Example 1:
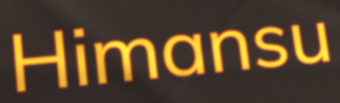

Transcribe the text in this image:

Himansu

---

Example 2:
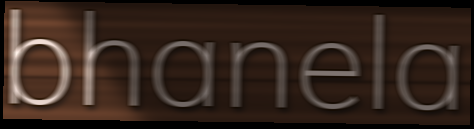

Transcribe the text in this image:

bhanela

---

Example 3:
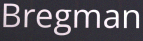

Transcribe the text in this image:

Bregman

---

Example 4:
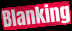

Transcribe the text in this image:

Blanking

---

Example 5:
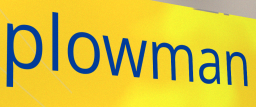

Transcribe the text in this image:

plowman